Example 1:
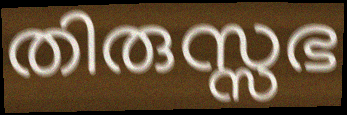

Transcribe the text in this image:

തിരുസ്സഭ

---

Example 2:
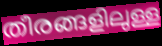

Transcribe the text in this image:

തീരങ്ങളിലുള്ള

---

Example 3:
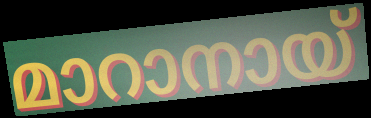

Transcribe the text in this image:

മാറാനായ്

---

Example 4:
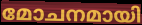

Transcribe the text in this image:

മോചനമായി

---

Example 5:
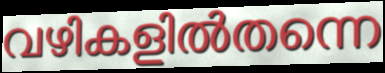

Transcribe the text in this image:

വഴികളിൽതന്നെ